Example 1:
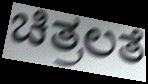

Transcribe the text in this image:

ಚಿತ್ರಲತೆ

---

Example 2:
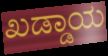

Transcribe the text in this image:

ಖಡ್ಡಾಯ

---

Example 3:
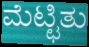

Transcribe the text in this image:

ಮೆಟ್ಟಿತು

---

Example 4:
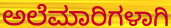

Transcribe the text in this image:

ಅಲೆಮಾರಿಗಳಾಗಿ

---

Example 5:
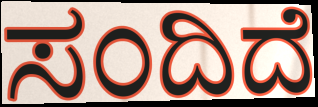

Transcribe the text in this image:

ಸಂದಿದೆ